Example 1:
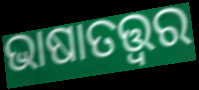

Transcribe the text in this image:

ଭାଷାତତ୍ତ୍ଵର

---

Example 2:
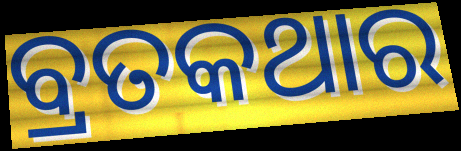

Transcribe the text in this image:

ବ୍ରତକଥାର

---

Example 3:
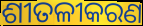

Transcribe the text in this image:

ଶୀତଳୀକରଣ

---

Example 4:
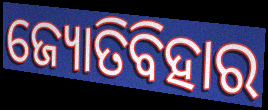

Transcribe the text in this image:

ଜ୍ୟୋତିବିହାର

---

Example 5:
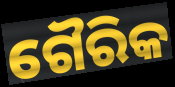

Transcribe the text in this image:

ଗୈରିକ